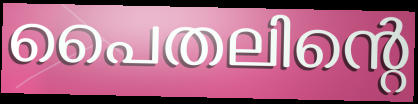
പൈതലിന്റെ